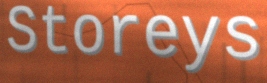
Storeys